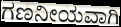
ಗಣನೀಯವಾಗಿ